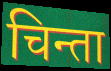
चिन्ता